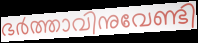
ഭർത്താവിനുവേണ്ടി